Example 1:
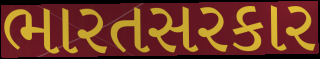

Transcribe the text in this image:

ભારતસરકાર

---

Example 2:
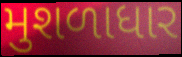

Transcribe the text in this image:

મુશળાધાર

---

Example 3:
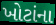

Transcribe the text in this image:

ખોટાંના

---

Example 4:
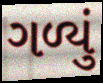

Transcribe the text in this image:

ગળ્યું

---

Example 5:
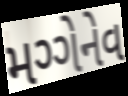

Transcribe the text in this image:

મગ્ગેનેવ